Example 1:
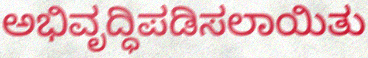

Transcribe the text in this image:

ಅಭಿವೃದ್ಧಿಪಡಿಸಲಾಯಿತು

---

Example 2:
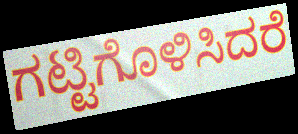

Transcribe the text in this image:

ಗಟ್ಟಿಗೊಳಿಸಿದರೆ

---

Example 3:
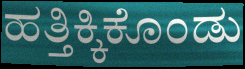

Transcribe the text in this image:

ಹತ್ತಿಕ್ಕಿಕೊಂಡು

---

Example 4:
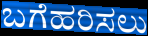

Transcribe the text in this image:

ಬಗೆಹರಿಸಲು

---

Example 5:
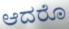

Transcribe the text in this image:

ಆದರೊ